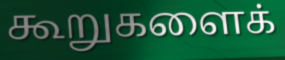
கூறுகளைக்